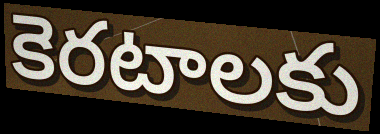
కెరటాలకు